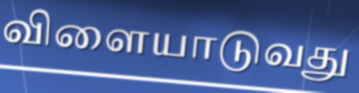
விளையாடுவது